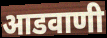
आडवाणी